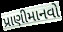
પ્રાણીમાનવો